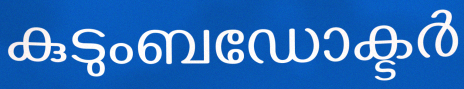
കുടുംബഡോക്ടർ